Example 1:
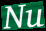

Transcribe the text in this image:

Nu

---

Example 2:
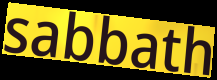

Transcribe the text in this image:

sabbath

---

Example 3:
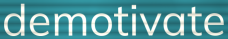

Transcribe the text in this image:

demotivate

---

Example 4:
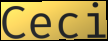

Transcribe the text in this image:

Ceci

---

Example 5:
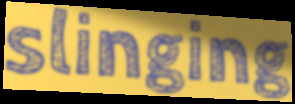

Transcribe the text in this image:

slinging